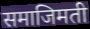
समाजिमती